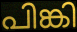
പിങ്കി